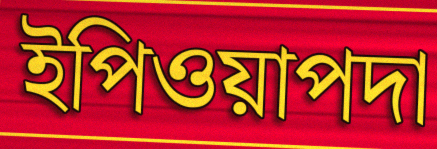
ইপিওয়াপদা